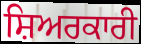
ਸ਼ਿਅਰਕਾਰੀ